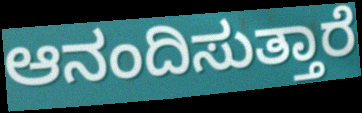
ಆನಂದಿಸುತ್ತಾರೆ